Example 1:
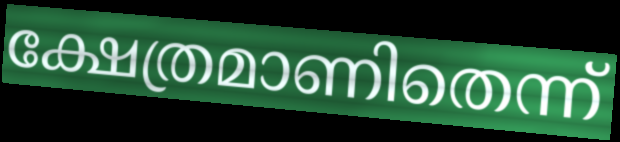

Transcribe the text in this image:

ക്ഷേത്രമാണിതെന്ന്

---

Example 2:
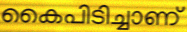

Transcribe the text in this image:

കൈപിടിച്ചാണ്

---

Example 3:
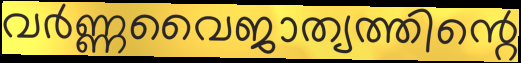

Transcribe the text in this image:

വർണ്ണവൈജാത്യത്തിന്റെ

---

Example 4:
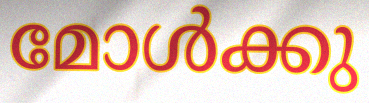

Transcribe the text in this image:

മോൾക്കു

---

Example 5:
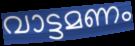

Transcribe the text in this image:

വാട്ടമണം